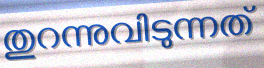
തുറന്നുവിടുന്നത്